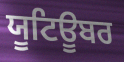
ਯੂਟਿਊਬਰ